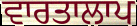
ਵਾਰਤਾਲਾਪ